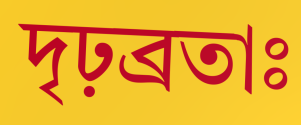
দৃঢ়ব্রতাঃ